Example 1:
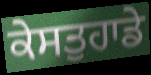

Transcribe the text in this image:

ਕੇਸਤੁਹਾਡੇ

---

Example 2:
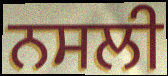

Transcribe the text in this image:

ਨਸਲੀ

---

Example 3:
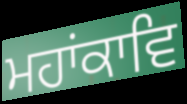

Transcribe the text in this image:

ਮਹਾਂਕਾਵਿ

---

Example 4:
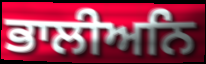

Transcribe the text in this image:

ਭਾਲੀਅਨਿ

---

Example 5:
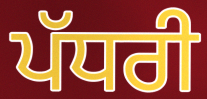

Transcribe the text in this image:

ਪੱਧਰੀ